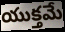
యుక్తమే